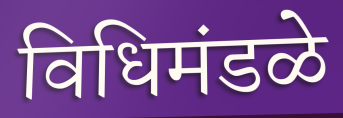
विधिमंडळे